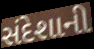
સંદેશાની